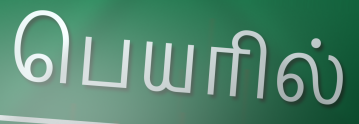
பெயரில்